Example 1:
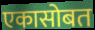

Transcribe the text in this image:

एकासोबत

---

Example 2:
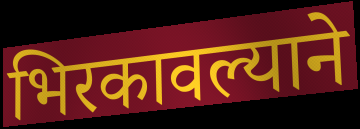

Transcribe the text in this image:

भिरकावल्याने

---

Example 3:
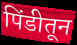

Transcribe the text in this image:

पिंडीतून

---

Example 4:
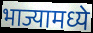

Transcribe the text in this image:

भाज्यामध्ये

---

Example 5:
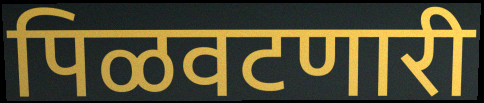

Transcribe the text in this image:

पिळवटणारी